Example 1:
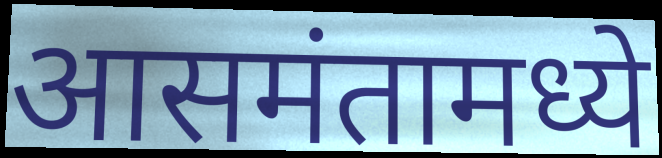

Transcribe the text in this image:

आसमंतामध्ये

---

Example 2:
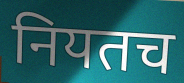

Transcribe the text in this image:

नियतच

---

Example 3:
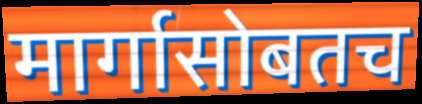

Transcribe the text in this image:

मार्गासोबतच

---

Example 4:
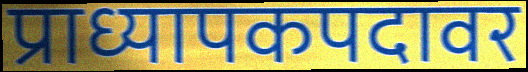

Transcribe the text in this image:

प्राध्यापकपदावर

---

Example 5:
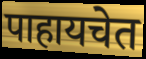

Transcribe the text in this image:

पाहायचेत